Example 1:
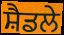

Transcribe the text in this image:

ਸ਼ੈਡਲੇ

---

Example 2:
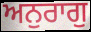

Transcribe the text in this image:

ਅਨੁਰਾਗੁ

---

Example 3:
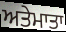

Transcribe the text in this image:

ਅਤੇਮਾਤਾ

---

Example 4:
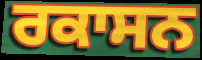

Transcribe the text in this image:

ਰਕਾਸਨ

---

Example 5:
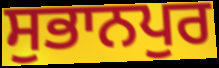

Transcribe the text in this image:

ਸੁਭਾਨਪੁਰ